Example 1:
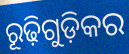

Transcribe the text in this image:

ରୂଢ଼ିଗୁଡ଼ିକର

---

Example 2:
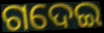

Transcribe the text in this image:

ଗଦେଇ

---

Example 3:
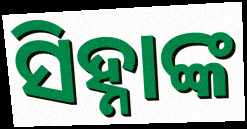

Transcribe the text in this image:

ସିହ୍ନାଙ୍କ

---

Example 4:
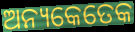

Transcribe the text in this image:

ଅନ୍ୟକେତେକ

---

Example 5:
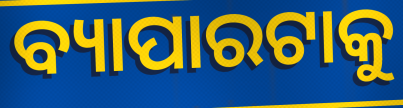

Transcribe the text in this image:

ବ୍ୟାପାରଟାକୁ